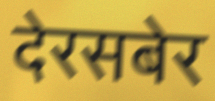
देरसबेर